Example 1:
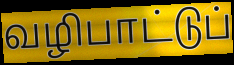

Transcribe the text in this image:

வழிபாட்டுப்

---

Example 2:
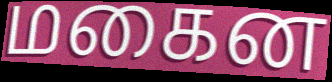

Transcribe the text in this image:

மகைன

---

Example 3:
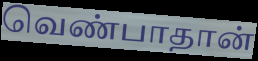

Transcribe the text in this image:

வெண்பாதான்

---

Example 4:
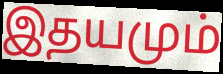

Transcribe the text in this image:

இதயமும்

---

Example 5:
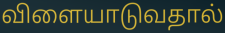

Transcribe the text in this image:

விளையாடுவதால்